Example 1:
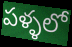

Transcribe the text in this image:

పళ్ళలో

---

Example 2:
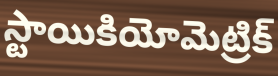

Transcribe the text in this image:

స్టాయికియోమెట్రిక్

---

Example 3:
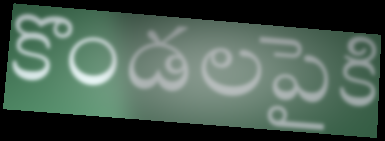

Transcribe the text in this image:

కొండలపైకి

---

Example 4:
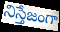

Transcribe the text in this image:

నిస్తేజంగా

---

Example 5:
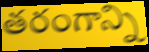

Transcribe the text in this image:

తరంగాన్ని